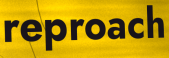
reproach